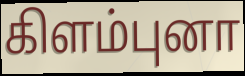
கிளம்புனா